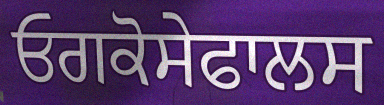
ਓਗਕੋਸੇਫਾਲਸ